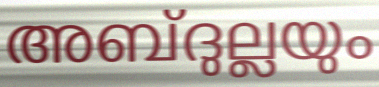
അബ്ദുല്ലയും